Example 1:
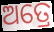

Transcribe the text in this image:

ଅତ୍ରେ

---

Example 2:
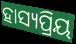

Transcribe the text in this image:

ହାସ୍ୟପ୍ରିୟ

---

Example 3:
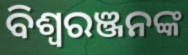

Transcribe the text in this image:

ବିଶ୍ବରଞ୍ଜନଙ୍କ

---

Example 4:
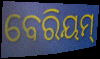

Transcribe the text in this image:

ବେରିୟମ୍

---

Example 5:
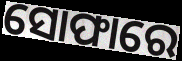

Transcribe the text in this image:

ସୋଫାରେ